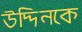
উদ্দিনকে